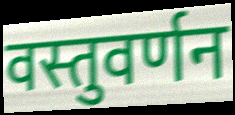
वस्तुवर्णन